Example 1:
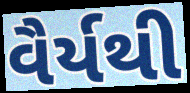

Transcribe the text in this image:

વૈર્યથી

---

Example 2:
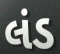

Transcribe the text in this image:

લંડ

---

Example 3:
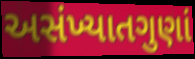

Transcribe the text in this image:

અસંખ્યાતગુણાં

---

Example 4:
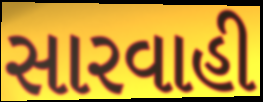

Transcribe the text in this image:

સારવાહી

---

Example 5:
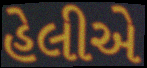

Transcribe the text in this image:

હેલીએ